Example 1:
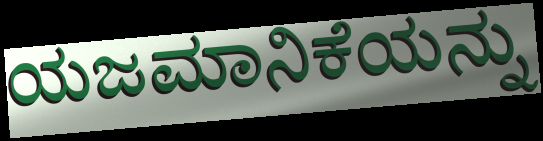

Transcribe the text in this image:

ಯಜಮಾನಿಕೆಯನ್ನು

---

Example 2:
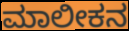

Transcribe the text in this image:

ಮಾಲೀಕನ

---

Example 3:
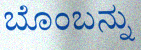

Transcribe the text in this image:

ಬೊಂಬನ್ನು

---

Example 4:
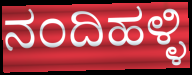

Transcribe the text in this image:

ನಂದಿಹಳ್ಳಿ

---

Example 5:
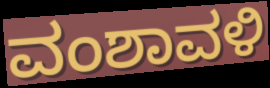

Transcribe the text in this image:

ವಂಶಾವಳಿ